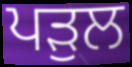
ਪੜੁਲ